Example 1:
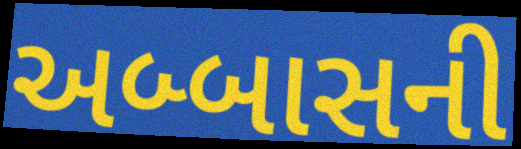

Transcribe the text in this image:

અબ્બાસની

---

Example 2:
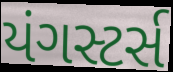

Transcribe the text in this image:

યંગસ્ટર્સ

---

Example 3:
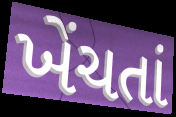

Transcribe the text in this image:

ખેંચતાં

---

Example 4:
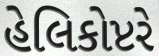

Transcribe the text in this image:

હેલિકોપ્ટરે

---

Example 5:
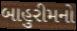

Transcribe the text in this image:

બાહુરીમનો